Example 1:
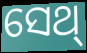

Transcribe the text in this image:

ସେଥ୍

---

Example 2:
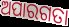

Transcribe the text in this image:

ଅପାରଗତା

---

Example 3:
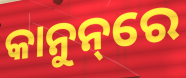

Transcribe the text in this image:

କାନୁନ୍‌ରେ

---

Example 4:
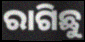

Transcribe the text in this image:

ରାଗିଛୁ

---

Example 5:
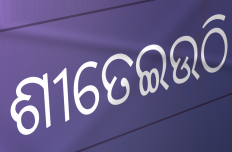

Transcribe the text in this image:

ଶୀତେଇଉଠି